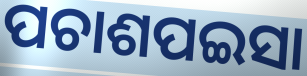
ପଚାଶପଇସା